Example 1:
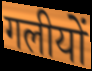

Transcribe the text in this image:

गलीयों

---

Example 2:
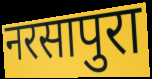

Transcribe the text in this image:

नरसापुरा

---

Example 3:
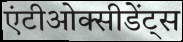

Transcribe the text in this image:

एंटीओक्सीडेंट्स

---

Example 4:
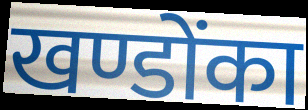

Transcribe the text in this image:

खण्डोंका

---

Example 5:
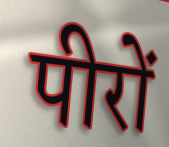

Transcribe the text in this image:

पीरों